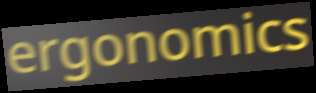
ergonomics